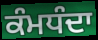
ਕੰਮਧੰਦਾ